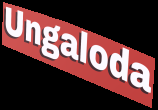
Ungaloda